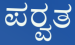
ಪರ್‍ವತ